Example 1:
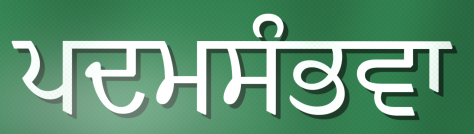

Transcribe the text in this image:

ਪਦਮਸੰਭਵਾ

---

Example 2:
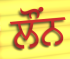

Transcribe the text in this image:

ਲੌਂਨ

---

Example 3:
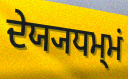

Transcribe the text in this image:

ਦੇਯ੍ਯਧਮ੍ਮਂ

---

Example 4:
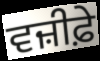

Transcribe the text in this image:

ਵਜ਼ੀਫ਼ੇ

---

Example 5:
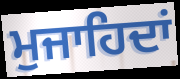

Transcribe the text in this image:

ਮੁਜਾਹਿਦਾਂ